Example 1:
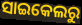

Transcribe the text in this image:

ସାଇକେଲରୁ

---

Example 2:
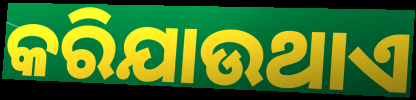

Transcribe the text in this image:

କରିଯାଉଥାଏ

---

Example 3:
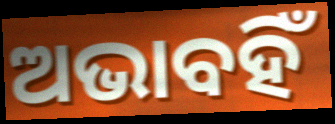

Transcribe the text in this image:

ଅଭାବହିଁ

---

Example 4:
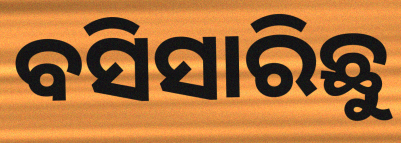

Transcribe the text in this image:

ବସିସାରିଛୁ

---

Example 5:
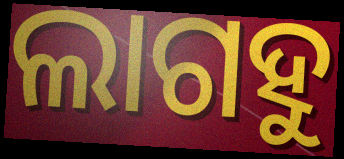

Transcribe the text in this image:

ଲାଗହୁ